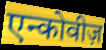
एन्कोवीज़